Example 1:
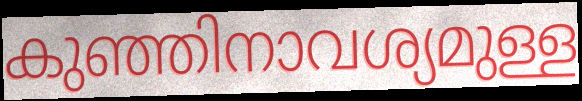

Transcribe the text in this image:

കുഞ്ഞിനാവശ്യമുള്ള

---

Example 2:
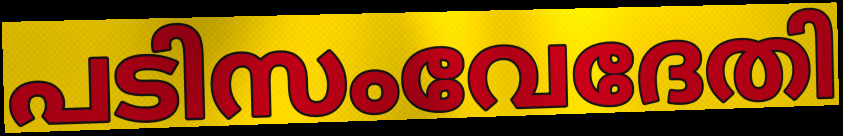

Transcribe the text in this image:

പടിസംവേദേതി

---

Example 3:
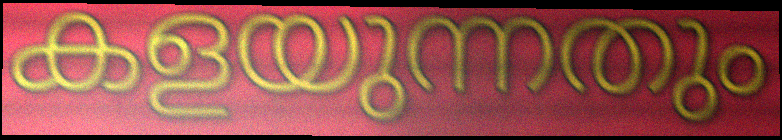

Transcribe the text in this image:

കളയുന്നതും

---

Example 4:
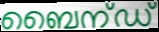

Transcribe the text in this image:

ബൈന്ഡ്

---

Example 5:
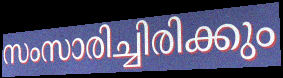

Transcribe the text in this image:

സംസാരിച്ചിരിക്കും